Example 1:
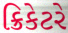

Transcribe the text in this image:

ક્રિકેટરે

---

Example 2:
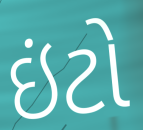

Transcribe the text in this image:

ઇંટો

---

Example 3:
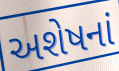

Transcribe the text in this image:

અશેષનાં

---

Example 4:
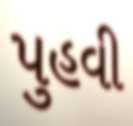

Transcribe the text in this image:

પુહવી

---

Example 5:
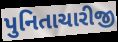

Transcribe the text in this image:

પુનિતાચારીજી